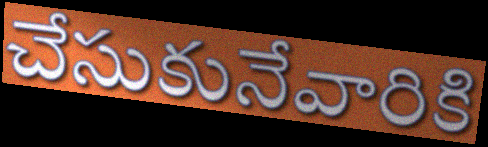
చేసుకునేవారికి